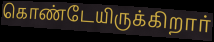
கொண்டேயிருக்கிறார்